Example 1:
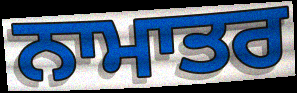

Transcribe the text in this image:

ਨਾਮਾਤਰ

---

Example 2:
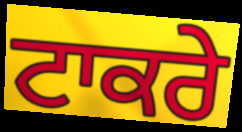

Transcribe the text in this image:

ਟਾਕਰੇ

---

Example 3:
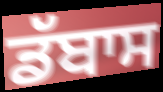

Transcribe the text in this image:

ਡੱਬਾਸ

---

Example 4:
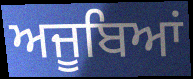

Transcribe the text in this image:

ਅਜੂਬਿਆਂ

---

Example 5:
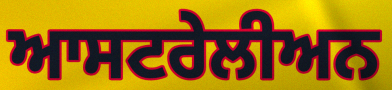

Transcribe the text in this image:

ਆਸਟਰੇਲੀਅਨ